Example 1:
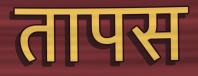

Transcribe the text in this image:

तापस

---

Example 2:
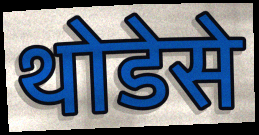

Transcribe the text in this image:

थोडेसे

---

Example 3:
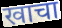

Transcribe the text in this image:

खाचा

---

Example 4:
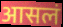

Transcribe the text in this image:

आसलं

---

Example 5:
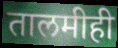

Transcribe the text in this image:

तालमीही